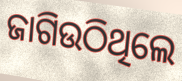
ଜାଗିଉଠିଥିଲେ